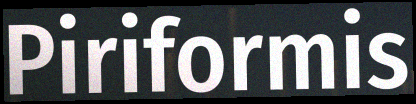
Piriformis